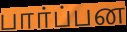
பார்ப்பன